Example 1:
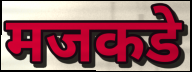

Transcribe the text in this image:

मजकडे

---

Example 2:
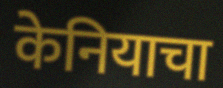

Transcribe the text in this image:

केनियाचा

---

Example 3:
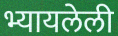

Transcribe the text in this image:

भ्यायलेली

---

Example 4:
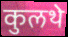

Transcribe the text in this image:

कुलथे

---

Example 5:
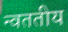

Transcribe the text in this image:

न्वततीय